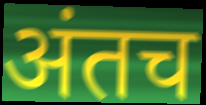
अंतच